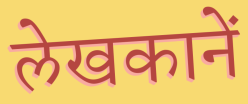
लेखकानें